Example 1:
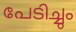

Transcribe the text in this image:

പേടിച്ചും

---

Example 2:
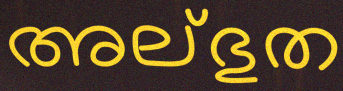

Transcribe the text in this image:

അല്ഭുത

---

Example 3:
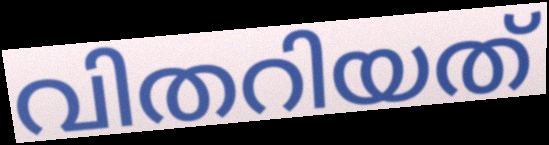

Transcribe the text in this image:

വിതറിയത്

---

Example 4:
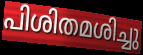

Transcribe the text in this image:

പിശിതമശിച്ചു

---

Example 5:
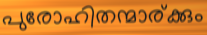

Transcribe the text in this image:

പുരോഹിതന്മാര്ക്കും